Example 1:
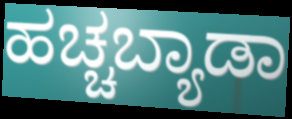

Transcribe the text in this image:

ಹಚ್ಚಬ್ಯಾಡಾ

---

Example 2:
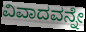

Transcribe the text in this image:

ವಿವಾದವನ್ನೇ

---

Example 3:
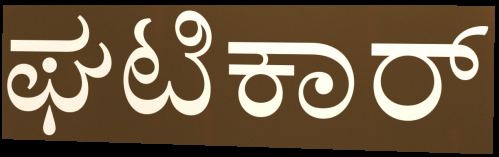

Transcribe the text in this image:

ಘಟಿಕಾರ್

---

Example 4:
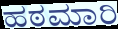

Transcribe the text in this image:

ಹಠಮಾರಿ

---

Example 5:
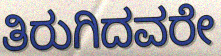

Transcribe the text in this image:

ತಿರುಗಿದವರೇ